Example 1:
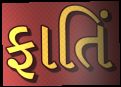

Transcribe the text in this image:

ફાતિં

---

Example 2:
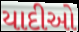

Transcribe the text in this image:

યાદીઓ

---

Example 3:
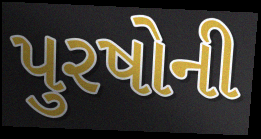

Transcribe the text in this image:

પુરષોની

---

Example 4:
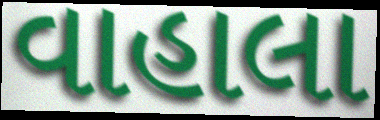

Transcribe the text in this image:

વાહાલા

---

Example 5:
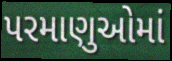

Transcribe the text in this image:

પરમાણુઓમાં